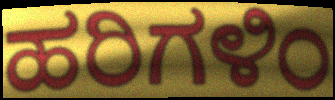
ಹರಿಗಳಿಂ